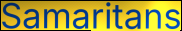
Samaritans